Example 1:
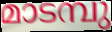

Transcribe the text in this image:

മാടമ്പു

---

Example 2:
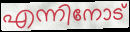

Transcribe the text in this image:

എന്നിനോട്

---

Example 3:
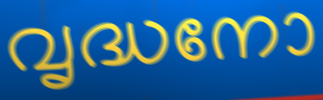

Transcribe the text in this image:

വൃദ്ധനോ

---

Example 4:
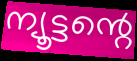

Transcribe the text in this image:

ന്യൂട്ടന്റെ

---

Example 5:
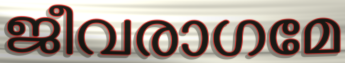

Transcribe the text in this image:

ജീവരാഗമേ